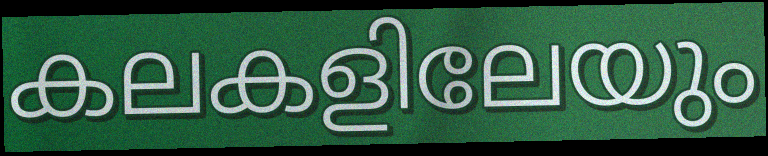
കലകളിലേയും